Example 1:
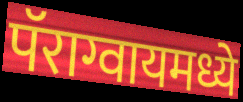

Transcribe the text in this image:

पॅराग्वायमध्ये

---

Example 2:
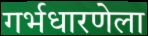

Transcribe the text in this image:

गर्भधारणेला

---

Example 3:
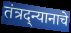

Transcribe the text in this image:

तंत्रद्न्यानाचे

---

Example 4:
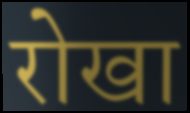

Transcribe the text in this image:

रोखा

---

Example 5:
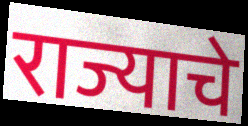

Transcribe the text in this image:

राज्याचे